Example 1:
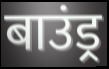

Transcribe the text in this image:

बाउंड्र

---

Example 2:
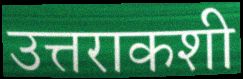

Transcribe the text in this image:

उत्तराकशी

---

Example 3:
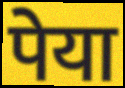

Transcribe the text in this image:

पेया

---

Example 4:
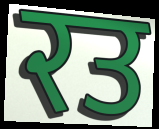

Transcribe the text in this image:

रउ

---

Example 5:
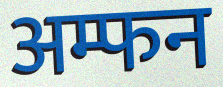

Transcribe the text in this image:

अम्फन